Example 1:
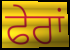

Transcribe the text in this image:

ਫੇਰਾਂ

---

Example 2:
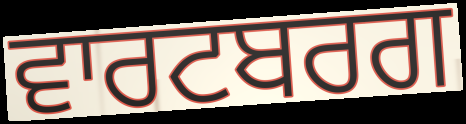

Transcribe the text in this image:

ਵਾਰਟਬਰਗ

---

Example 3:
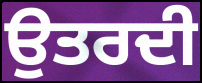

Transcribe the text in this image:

ਉਤਰਦੀ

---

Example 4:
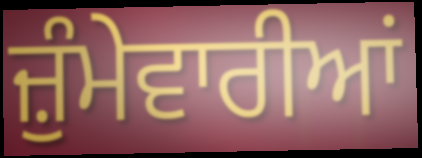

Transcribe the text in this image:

ਜ਼ੁੰਮੇਵਾਰੀਆਂ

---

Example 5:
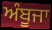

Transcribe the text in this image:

ਅੰਬੂਜਾ